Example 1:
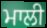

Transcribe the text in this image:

ਮਾਲੀ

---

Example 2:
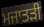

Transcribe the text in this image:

ਮਜਾਤੜੀ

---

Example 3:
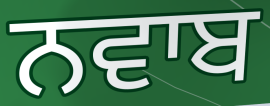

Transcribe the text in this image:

ਨਵਾਬ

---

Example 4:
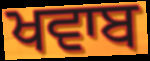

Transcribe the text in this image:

ਖਵਾਬ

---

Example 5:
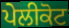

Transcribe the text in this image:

ਪੇਲੀਕੋਟ